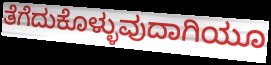
ತೆಗೆದುಕೊಳ್ಳುವುದಾಗಿಯೂ